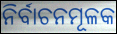
ନିର୍ବାଚନମୂଳକ